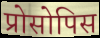
प्रोसोपिस